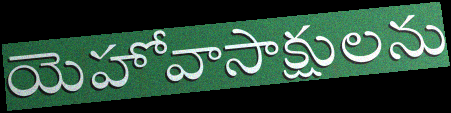
యెహోవాసాక్షులను